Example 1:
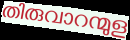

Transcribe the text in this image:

തിരുവാറന്മുള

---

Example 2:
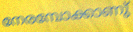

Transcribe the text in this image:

നേരമ്പോക്കാണു്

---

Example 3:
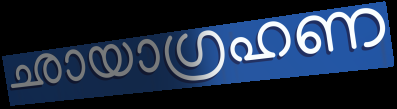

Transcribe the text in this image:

ഛായാഗ്രഹണ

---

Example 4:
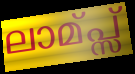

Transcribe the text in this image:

ലാമ്പ്സ്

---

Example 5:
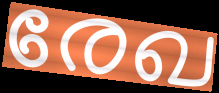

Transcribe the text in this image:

രേഖ